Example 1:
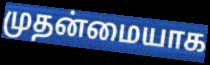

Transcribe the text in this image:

முதன்மையாக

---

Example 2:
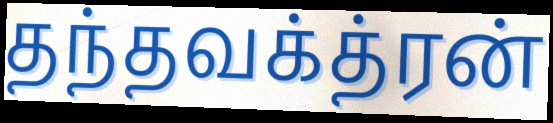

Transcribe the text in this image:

தந்தவக்த்ரன்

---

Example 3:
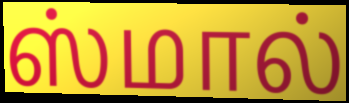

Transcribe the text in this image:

ஸ்மால்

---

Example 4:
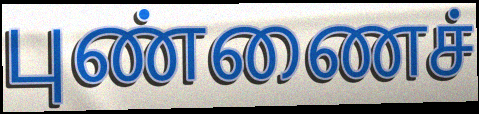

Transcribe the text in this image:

புண்ணைச்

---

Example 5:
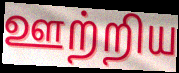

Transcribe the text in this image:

ஊற்றிய